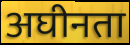
अघीनता